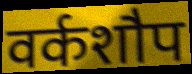
वर्कशौप